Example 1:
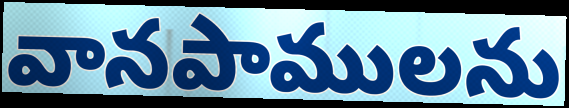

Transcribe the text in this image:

వానపాములను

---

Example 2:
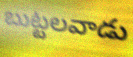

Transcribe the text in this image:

బుట్టలవాడు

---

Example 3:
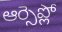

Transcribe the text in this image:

ఆర్సెప్లో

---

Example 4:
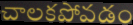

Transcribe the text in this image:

చాలకపోవడం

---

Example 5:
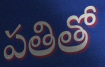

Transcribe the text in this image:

పతితో